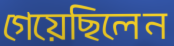
গেয়েছিলেন